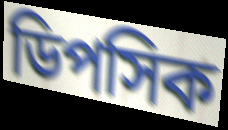
ডিপসিক